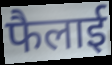
फैलाई